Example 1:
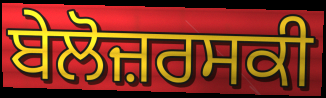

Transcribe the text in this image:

ਬੇਲੋਜ਼ਰਸਕੀ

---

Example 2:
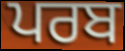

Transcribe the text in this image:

ਪਰਬ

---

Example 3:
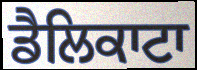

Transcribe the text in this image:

ਡੈਲਿਕਾਟਾ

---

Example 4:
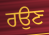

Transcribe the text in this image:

ਰਉਣ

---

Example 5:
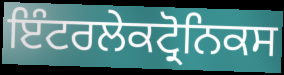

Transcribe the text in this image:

ਇੰਟਰਲੇਕਟ੍ਰੋਨਿਕਸ